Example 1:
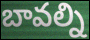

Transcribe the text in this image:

బావల్ని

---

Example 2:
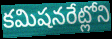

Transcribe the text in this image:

కమిషనరేట్లోని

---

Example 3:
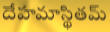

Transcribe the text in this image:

దేహమాస్థితమ్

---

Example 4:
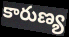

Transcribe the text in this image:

కారుణ్య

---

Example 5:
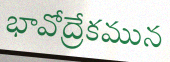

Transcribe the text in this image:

భావోద్రేకమున